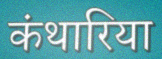
कंथारिया